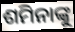
ଶମିନାଙ୍କୁ